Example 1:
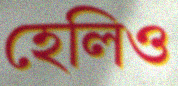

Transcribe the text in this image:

হেলিও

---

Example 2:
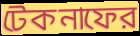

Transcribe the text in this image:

টেকনাফের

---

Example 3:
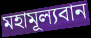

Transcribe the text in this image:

মহামূল্যবান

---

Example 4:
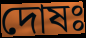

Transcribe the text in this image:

দোষঃ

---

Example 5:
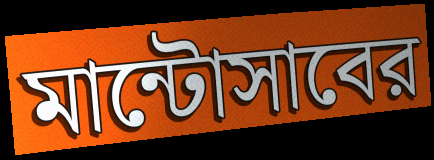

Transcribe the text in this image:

মান্টোসাবের